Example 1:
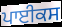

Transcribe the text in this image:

ਪਾਈਕਸ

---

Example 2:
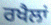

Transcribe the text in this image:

ਰਖੈਲਾਂ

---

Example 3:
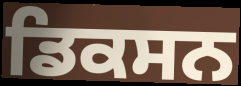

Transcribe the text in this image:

ਡਿਕਸਨ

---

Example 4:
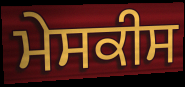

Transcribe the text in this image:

ਮੇਸਕੀਸ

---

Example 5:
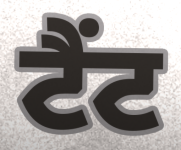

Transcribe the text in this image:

ਟੈਂਟ